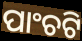
ପାଂଚଟି